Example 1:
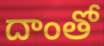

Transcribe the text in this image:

దాంతో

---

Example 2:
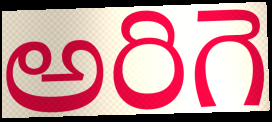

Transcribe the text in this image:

అరిగె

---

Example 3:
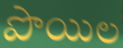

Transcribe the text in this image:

పొయిల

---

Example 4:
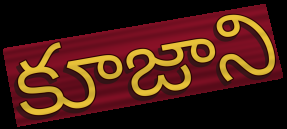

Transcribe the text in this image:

కూజాని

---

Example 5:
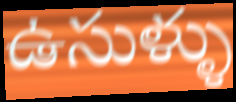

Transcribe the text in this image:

ఉసుళ్ళు